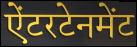
ऐंटरटेनमेंट